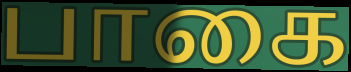
பாகை